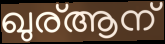
ഖുര്ആന്